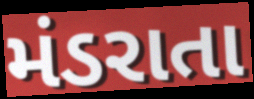
મંડરાતા